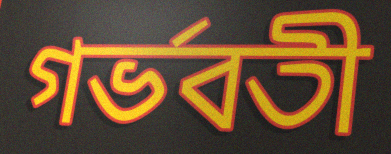
গর্ভবতী